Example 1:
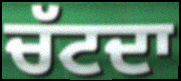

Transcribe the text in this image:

ਚੱਟਦਾ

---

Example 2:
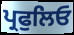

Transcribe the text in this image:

ਪ੍ਰਫੁਲਿਓ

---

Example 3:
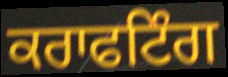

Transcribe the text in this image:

ਕਰਾਫਟਿੰਗ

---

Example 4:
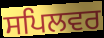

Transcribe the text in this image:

ਸਪਿਲਵਰ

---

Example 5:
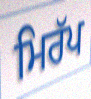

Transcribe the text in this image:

ਮਿਰੱਪ